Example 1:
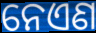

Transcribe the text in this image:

ନେଏଣ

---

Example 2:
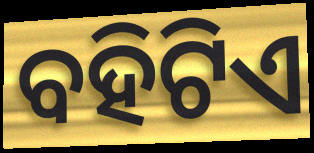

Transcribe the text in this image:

ବହିଟିଏ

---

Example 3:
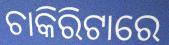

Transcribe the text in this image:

ଚାକିରିଟାରେ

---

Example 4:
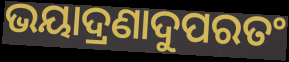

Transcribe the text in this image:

ଭୟାଦ୍ରଣାଦୁପରତଂ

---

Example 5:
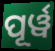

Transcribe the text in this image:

ପୂର୍ୱ